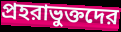
প্রহরাভুক্তদের